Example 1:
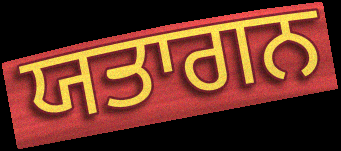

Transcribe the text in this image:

ਯਤਾਗਨ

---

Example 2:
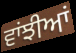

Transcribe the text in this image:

ਵਾਂਝੀਆਂ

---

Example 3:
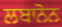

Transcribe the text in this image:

ਲਬਾਨੋਨ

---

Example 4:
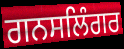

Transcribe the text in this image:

ਗਨਸਲਿੰਗਰ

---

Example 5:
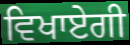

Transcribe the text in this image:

ਵਿਖਾਏਗੀ